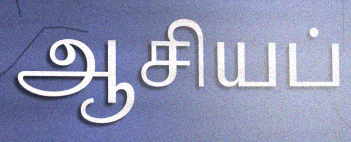
ஆசியப்